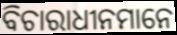
ବିଚାରାଧୀନମାନେ